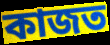
কাজত